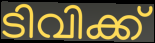
ടിവിക്ക്